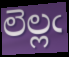
లెల్లఁ